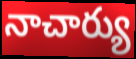
నాచార్యు